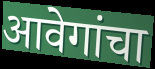
आवेगांचा